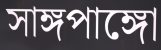
সাঙ্গপাঙ্গো